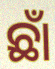
ଛାଁ